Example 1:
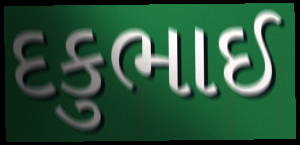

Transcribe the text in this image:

દકુભાઈ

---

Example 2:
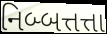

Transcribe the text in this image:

નિબ્બત્તત્તા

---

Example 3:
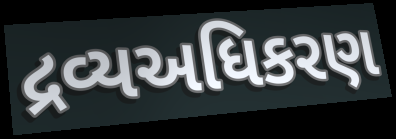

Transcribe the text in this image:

દ્રવ્યઅધિકરણ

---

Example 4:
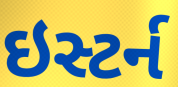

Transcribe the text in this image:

ઇસ્ટર્ન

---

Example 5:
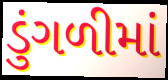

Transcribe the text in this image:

ડુંગળીમાં